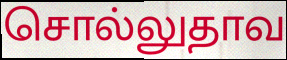
சொல்லுதாவ